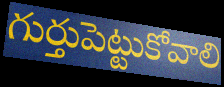
గుర్తుపెట్టుకోవాలి